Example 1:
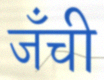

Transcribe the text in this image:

जँची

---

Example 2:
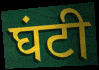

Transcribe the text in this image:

घंटी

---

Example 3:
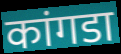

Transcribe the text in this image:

कांगडा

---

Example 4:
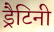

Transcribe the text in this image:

ड्रैटिनी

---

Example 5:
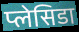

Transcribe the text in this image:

प्लेसिडा